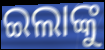
ଇଲାଙ୍କୁ